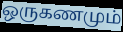
ஒருகணமும்